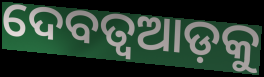
ଦେବତ୍ୱଆଡ଼କୁ